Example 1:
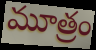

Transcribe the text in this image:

మూత్రం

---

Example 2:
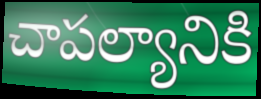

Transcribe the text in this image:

చాపల్యానికి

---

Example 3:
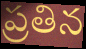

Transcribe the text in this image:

ప్రతిన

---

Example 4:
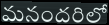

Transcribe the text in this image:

మనందరిలో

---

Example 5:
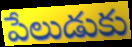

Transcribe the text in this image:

పేలుడుకు